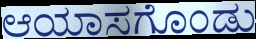
ಆಯಾಸಗೊಂಡು